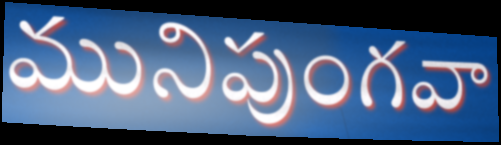
మునిపుంగవా